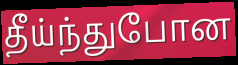
தீய்ந்துபோன